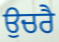
ਉਚਰੈ